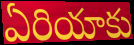
ఏరియాకు